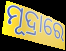
ମୂଦ୍ରାରେ